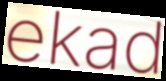
ekad